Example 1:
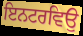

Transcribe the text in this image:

ਇਨਟਰਵਿਉ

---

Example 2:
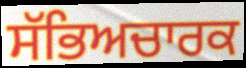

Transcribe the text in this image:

ਸੱਭਿਅਚਾਰਕ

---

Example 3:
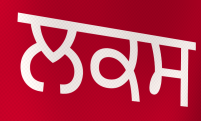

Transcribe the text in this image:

ਲਕਸ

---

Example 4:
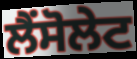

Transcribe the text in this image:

ਲੈਂਸੋਲੇਟ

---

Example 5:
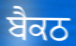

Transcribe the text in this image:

ਬੈਕਠ